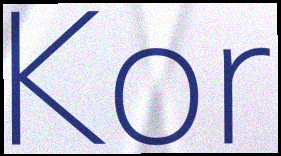
Kor